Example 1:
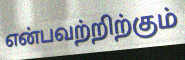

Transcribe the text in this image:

என்பவற்றிற்கும்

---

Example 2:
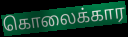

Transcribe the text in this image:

கொலைக்கார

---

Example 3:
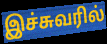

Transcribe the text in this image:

இச்சுவரில்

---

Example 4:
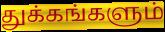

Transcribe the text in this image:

துக்கங்களும்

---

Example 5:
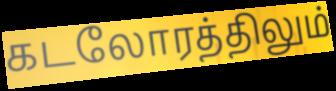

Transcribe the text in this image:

கடலோரத்திலும்